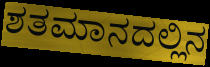
ಶತಮಾನದಲ್ಲಿನ